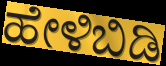
ಹೇಳಿಬಿಡಿ